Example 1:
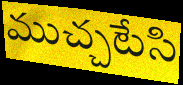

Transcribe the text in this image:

ముచ్చటేసి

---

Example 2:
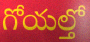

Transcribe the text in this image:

గోయల్తో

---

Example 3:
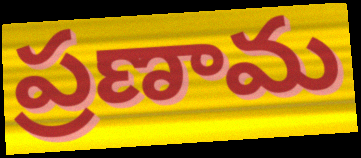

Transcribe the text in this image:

ప్రణామ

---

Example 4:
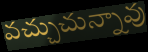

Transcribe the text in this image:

వచ్చుచున్నావు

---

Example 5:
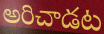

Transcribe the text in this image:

అరిచాడట